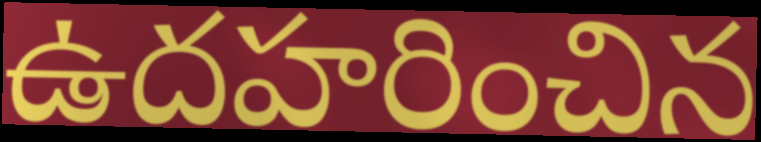
ఉదహరించిన